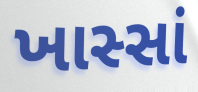
ખાસ્સાં